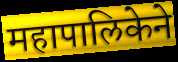
महापालिकेने